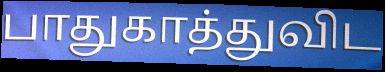
பாதுகாத்துவிட